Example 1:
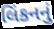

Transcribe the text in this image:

લિંકનનું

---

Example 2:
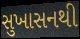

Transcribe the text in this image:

સુખાસનથી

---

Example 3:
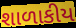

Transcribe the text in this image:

શાળાકીય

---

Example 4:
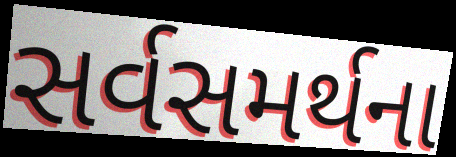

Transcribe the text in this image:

સર્વસમર્થના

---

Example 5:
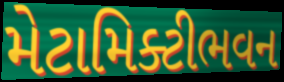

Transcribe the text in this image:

મેટામિક્ટીભવન